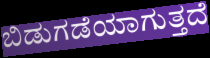
ಬಿಡುಗಡೆಯಾಗುತ್ತದೆ